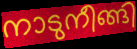
നാടുനീങ്ങി